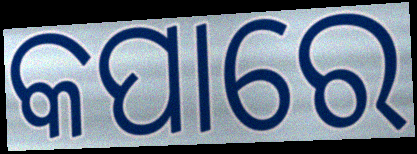
କପାରେ